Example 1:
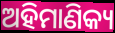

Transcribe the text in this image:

ଅହିମାଣିକ୍ୟ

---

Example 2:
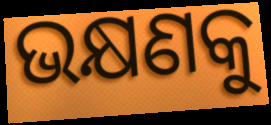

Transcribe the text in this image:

ଭକ୍ଷଣକୁ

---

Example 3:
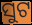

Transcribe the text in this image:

ସୁଟ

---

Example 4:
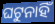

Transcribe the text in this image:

ଘଟୁନାହିଁ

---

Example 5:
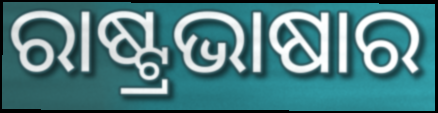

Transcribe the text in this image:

ରାଷ୍ଟ୍ରଭାଷାର